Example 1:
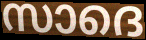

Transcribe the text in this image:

സാദെ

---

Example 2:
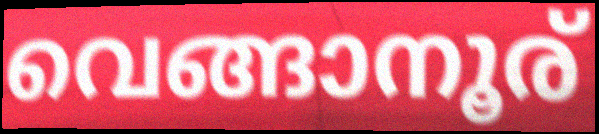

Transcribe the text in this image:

വെങ്ങാനൂര്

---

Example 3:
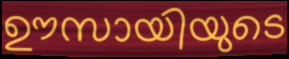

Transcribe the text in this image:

ഊസായിയുടെ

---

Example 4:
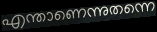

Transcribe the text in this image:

എന്താണെന്നുതന്നെ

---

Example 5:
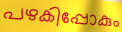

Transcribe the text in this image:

പഴകിപ്പോകും